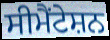
ਸੀਮੈਂਟੇਸ਼ਨ